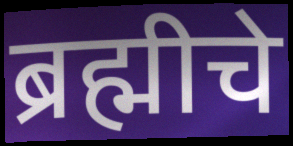
ब्रह्मीचे